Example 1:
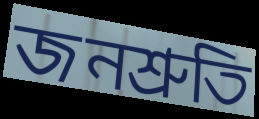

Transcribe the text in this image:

জনশ্রুতি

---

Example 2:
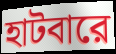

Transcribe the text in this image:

হাটবারে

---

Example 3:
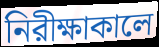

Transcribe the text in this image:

নিরীক্ষাকালে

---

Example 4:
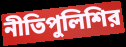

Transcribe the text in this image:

নীতিপুলিশির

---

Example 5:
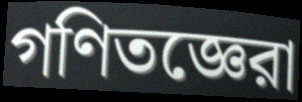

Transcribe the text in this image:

গণিতজ্ঞেরা